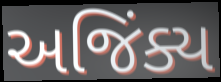
અજિંક્ય